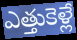
ఎత్తుకెళ్లే